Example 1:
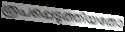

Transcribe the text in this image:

രൂപപ്പെടുത്തിയതോ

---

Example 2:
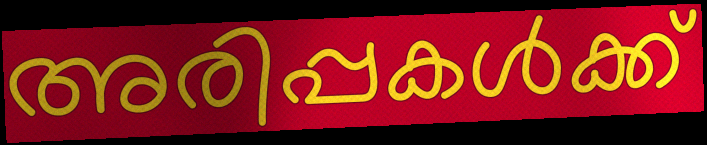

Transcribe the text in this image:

അരിപ്പകൾക്ക്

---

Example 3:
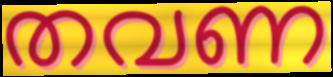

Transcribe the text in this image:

തവണ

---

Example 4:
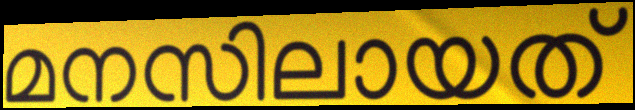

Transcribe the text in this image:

മനസിലായത്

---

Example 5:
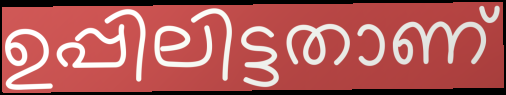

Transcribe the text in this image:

ഉപ്പിലിട്ടതാണ്